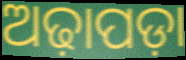
ଅଢ଼ାପଡ଼ା